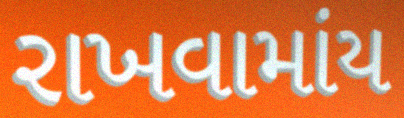
રાખવામાંય